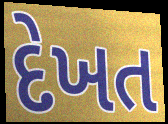
દેખત